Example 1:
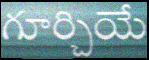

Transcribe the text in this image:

గూర్చియే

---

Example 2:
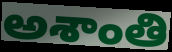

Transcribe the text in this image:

అశాంతి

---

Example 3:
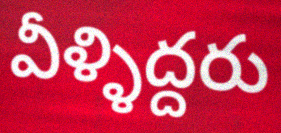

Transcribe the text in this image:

వీళ్ళిద్దరు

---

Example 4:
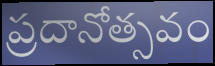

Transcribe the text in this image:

ప్రదానోత్సవం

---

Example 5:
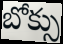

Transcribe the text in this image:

బోక్సు